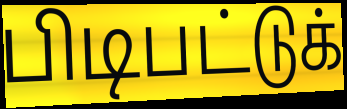
பிடிபட்டுக்